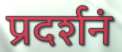
प्रदर्शनं